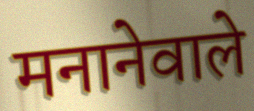
मनानेवाले